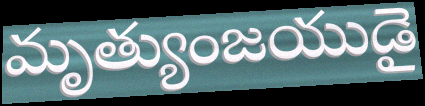
మృత్యుంజయుడై